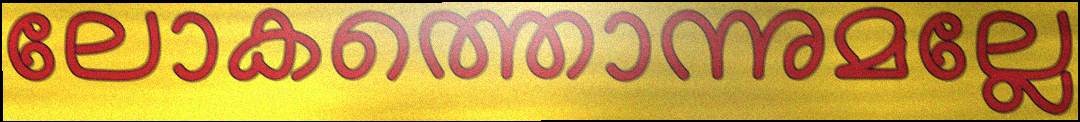
ലോകത്തൊന്നുമല്ലേ